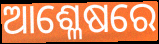
ଆଶ୍ଳେଷରେ